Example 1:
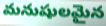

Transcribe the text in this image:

మనుషులమైన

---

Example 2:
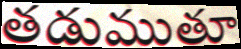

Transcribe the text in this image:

తడుముతూ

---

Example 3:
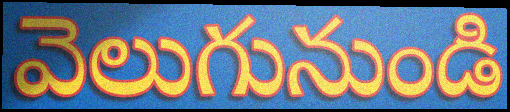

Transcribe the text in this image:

వెలుగునుండి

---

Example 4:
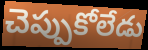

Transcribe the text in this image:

చెప్పుకోలేడు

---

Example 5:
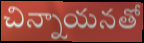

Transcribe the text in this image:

చిన్నాయనతో